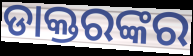
ଡାକ୍ତରଙ୍କର